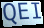
QEI